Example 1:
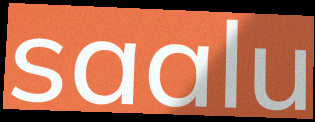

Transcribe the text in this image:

saalu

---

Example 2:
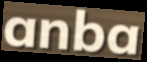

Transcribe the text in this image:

anba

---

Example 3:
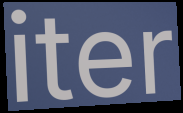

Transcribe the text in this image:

iter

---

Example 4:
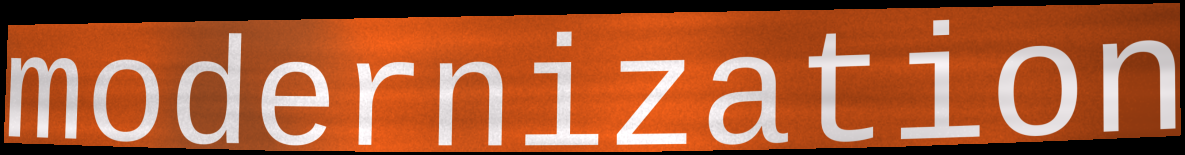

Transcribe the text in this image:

modernization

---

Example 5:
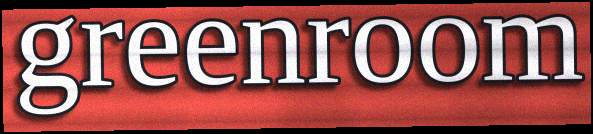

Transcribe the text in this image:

greenroom